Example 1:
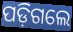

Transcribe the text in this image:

ପଡ଼ିଗଲେ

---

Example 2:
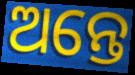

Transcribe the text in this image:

ଅନ୍ତେ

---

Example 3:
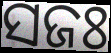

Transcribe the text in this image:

ସଜଃ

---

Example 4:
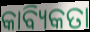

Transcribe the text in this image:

କାବ୍ୟିକତା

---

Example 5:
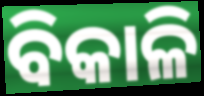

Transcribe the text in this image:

ବିକାଳି